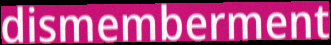
dismemberment